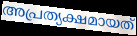
അപ്രത്യക്ഷമായത്